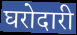
घरोदारी